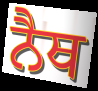
ਨੈਥ